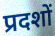
प्रदशों